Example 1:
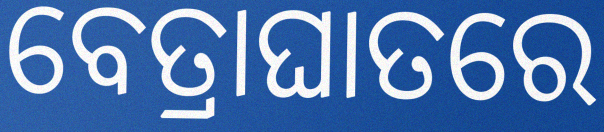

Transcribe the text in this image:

ବେତ୍ରାଘାତରେ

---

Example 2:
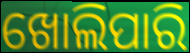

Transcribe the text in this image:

ଖୋଲିପାରି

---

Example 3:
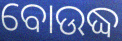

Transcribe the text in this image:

ବୋଉଦ୍ଧ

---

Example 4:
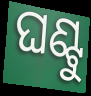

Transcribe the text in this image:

ଘଣ୍ଟୁ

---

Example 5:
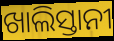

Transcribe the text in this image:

ଖାଲିସ୍ତାନୀ